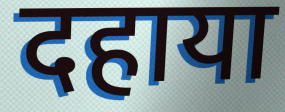
दहाया